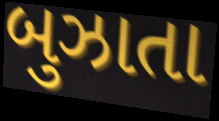
બુઝાતા